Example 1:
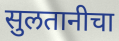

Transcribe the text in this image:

सुलतानीचा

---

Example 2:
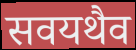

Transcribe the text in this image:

सवयथैव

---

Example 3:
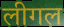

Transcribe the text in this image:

लीगल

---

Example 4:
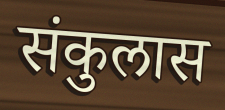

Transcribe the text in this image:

संकुलास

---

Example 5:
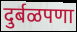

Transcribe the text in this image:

दुर्बळपणा